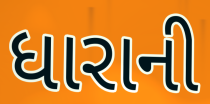
ધારાની